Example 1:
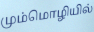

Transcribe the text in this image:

மும்மொழியில்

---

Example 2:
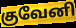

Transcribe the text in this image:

குவேனி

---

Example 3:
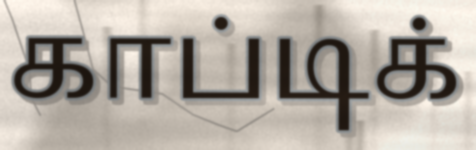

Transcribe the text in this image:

காப்டிக்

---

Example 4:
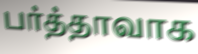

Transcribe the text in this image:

பர்த்தாவாக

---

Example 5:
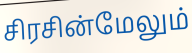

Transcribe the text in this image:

சிரசின்மேலும்